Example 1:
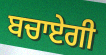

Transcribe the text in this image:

ਬਚਾਏਗੀ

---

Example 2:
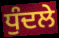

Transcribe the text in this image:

ਧੁੰਦਲੇ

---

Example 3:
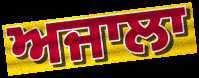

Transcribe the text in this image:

ਅਜਾਲਾ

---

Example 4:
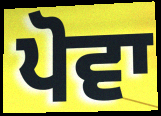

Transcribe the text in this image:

ਪੋਵਾ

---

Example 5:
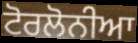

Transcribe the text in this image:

ਟੋਰਲੋਨੀਆ